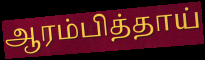
ஆரம்பித்தாய்